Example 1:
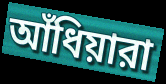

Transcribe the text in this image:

আঁধিয়ারা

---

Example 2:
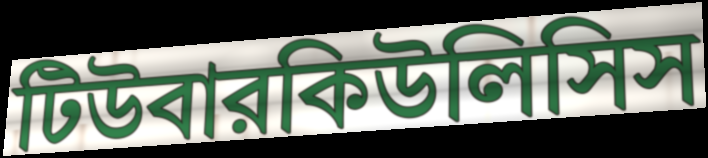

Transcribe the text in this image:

টিউবারকিউলিসিস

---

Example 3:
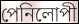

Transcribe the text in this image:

পেনিলোপী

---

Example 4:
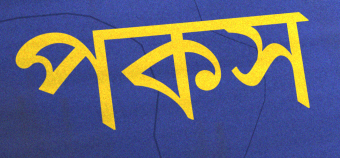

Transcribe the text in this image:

পকস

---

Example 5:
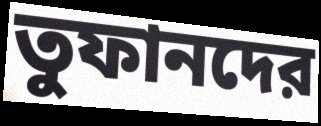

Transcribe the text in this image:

তুফানদের